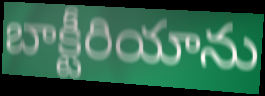
బాక్టీరియాను